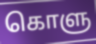
கொளு